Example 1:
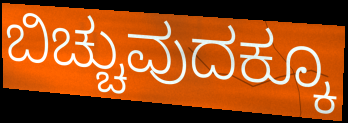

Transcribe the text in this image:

ಬಿಚ್ಚುವುದಕ್ಕೂ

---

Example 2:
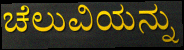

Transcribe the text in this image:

ಚೆಲುವಿಯನ್ನು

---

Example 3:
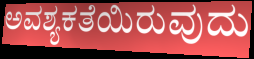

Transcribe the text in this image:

ಅವಶ್ಯಕತೆಯಿರುವುದು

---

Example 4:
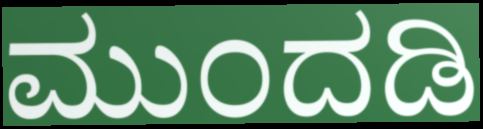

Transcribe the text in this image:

ಮುಂದಡಿ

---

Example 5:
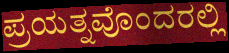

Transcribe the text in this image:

ಪ್ರಯತ್ನವೊಂದರಲ್ಲಿ